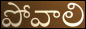
పోవాలి